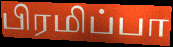
பிரமிப்பா